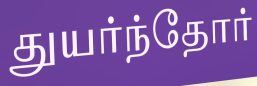
துயர்ந்தோர்